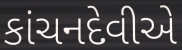
કાંચનદેવીએ